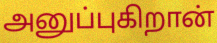
அனுப்புகிறான்